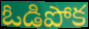
ఓడిపోక